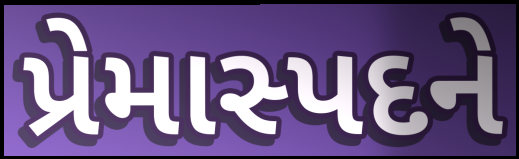
પ્રેમાસ્પદને